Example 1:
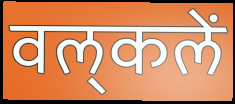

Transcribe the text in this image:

वल्कलें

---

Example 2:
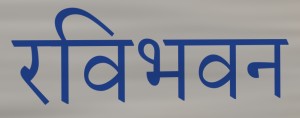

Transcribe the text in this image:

रविभवन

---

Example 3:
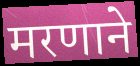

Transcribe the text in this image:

मरणाने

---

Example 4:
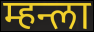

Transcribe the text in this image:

म्हन्ला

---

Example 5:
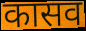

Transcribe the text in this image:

कासव